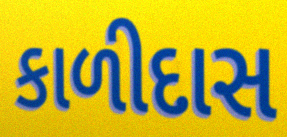
કાળીદાસ